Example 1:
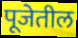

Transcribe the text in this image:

पूजेतील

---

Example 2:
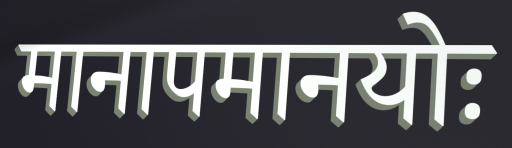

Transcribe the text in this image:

मानापमानयोः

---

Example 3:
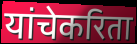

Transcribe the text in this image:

यांचेकरिता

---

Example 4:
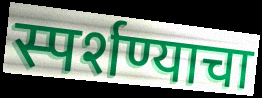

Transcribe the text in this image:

स्पर्शण्याचा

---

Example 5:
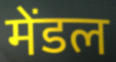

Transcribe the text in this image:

मेंडल